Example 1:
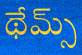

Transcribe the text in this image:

థేమ్స్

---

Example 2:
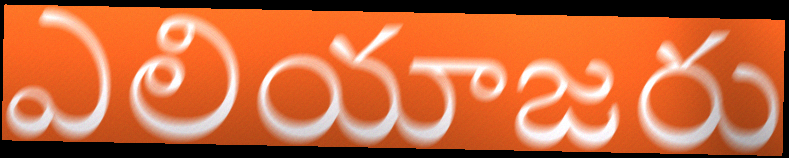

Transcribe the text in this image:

ఎలియాజరు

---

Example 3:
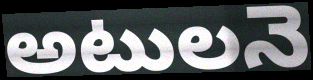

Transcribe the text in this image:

అటులనె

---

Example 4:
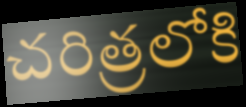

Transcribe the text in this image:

చరిత్రలోకి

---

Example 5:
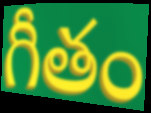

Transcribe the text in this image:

గీతం